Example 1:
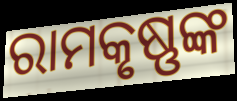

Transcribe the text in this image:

ରାମକୃଷ୍ଣଙ୍କ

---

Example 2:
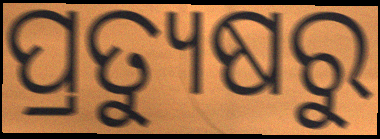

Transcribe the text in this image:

ପ୍ରତ୍ୟୁଷରୁ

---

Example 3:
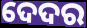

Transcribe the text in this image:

ଦେଦର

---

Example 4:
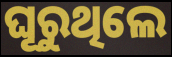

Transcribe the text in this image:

ଘୂରୁଥିଲେ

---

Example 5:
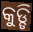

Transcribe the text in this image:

କୁଡ୍ଡି